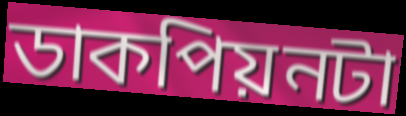
ডাকপিয়নটা